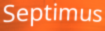
Septimus